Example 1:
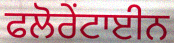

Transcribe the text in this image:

ਫਲੋਰੇਂਟਾਈਨ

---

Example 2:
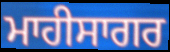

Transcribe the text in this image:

ਮਾਹੀਸਾਗਰ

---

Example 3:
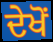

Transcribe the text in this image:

ਦੇਖੋਂ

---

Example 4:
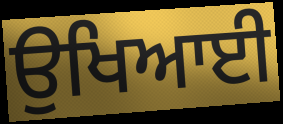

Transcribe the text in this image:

ਉਖਿਆਈ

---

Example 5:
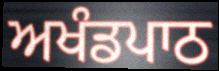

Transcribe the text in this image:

ਅਖੰਡਪਾਠ